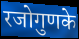
रजोगुणके